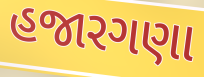
હજારગણા